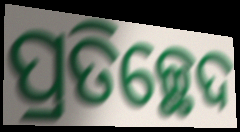
ପ୍ରତିଚ୍ଛେଦ